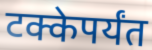
टक्केपर्यंत